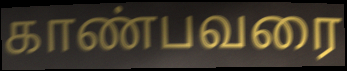
காண்பவரை